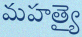
మహత్యై